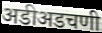
अडीअडचणी